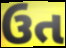
ઉત